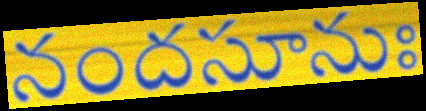
నందసూనుః